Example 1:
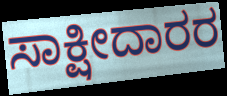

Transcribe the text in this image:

ಸಾಕ್ಷೀದಾರರ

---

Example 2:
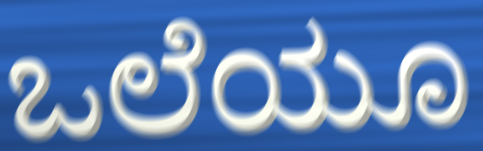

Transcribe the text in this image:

ಒಲೆಯೂ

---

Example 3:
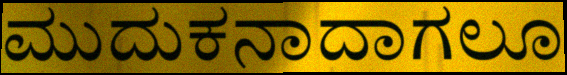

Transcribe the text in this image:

ಮುದುಕನಾದಾಗಲೂ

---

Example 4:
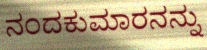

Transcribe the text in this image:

ನಂದಕುಮಾರನನ್ನು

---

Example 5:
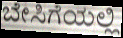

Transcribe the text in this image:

ಬೇಸಿಗೆಯಲ್ಲಿ